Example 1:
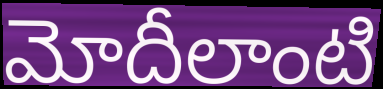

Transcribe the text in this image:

మోదీలాంటి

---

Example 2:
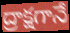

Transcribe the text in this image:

ద్రాక్షగానే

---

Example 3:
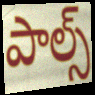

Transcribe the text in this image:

పాల్స్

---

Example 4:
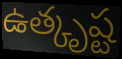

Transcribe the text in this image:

ఉత్కృష్ట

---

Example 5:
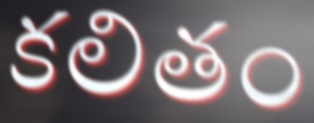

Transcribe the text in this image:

కలితం